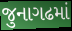
જુનાગઢમાં